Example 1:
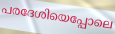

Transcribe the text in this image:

പരദേശിയെപ്പോലെ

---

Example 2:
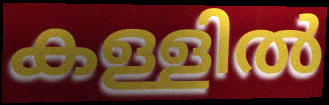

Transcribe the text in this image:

കള്ളിൽ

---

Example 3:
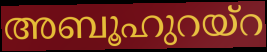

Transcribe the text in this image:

അബൂഹുറയ്റ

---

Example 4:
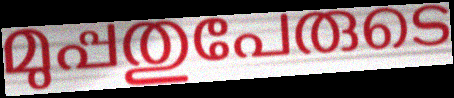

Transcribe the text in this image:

മുപ്പതുപേരുടെ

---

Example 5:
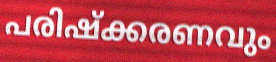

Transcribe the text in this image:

പരിഷ്ക്കരണവും